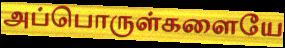
அப்பொருள்களையே